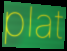
plat